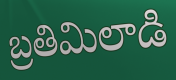
బ్రతిమిలాడి